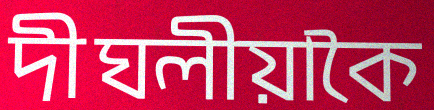
দীঘলীয়াকৈ